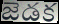
జెడక